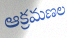
ఆక్రమణల